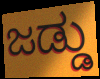
ಜಡ್ಡು